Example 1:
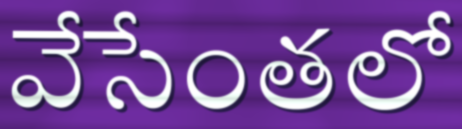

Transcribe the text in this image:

వేసేంతలో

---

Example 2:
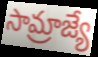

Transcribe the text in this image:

సామ్రాజ్యే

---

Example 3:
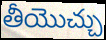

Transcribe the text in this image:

తీయొచ్చు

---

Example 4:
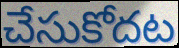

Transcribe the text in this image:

చేసుకోదట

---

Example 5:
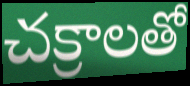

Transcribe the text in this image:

చక్రాలతో